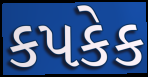
કપકેક